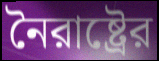
নৈরাষ্ট্রের